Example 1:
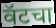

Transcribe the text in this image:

वॅटचा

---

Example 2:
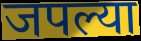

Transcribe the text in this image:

जपल्या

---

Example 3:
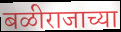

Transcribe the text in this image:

बळीराजाच्या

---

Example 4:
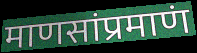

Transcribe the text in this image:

माणसांप्रमाणं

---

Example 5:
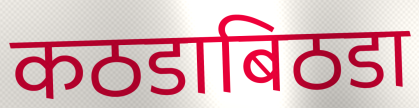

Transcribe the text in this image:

कठडाबिठडा